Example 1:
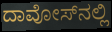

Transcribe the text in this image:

ದಾವೋಸ್‌ನಲ್ಲಿ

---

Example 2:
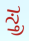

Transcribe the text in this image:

ಸ್ತ್ರ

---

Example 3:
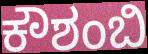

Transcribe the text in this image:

ಕೌಶಂಬಿ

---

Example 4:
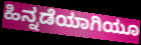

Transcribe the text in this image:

ಹಿನ್ನಡೆಯಾಗಿಯೂ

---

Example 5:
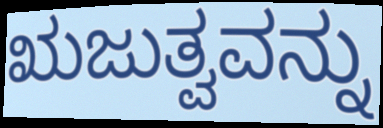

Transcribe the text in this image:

ಋಜುತ್ವವನ್ನು